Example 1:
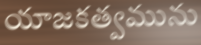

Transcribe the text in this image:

యాజకత్వమును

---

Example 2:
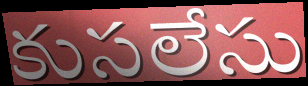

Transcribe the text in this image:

కుసలేసు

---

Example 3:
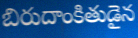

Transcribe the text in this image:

బిరుదాంకితుడైన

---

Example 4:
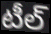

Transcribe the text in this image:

టీల్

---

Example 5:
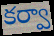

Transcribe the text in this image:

కర్వా